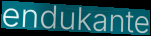
endukante